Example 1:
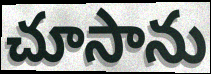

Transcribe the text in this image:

చూసాను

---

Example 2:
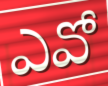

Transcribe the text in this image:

ఎవో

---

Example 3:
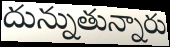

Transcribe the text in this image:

దున్నుతున్నారు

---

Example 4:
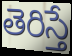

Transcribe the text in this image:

తెరిస్తే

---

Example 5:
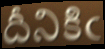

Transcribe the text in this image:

దీనికిఁ